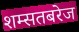
शम्सतबरेज